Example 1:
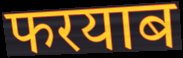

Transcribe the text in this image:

फरयाब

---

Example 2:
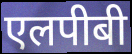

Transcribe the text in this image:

एलपीबी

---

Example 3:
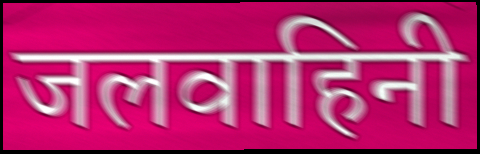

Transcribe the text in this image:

जलवाहिनी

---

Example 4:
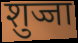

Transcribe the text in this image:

शुज्जा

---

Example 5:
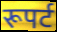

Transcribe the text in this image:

रूपर्ट